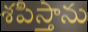
శపిస్తాను